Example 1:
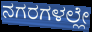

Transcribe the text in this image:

ನಗರಗಳಲ್ಲೇ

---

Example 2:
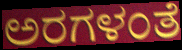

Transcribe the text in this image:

ಅರಗಳಂತೆ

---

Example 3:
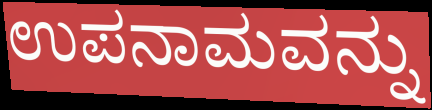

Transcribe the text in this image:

ಉಪನಾಮವನ್ನು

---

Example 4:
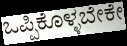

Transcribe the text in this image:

ಒಪ್ಪಿಕೊಳ್ಳಬೇಕೇ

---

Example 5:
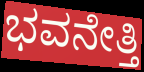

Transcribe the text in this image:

ಭವನೇತ್ತಿ